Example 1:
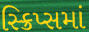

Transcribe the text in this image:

સ્ક્રિપ્સમાં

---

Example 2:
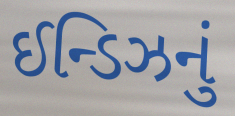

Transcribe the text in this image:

ઈન્ડિઝનું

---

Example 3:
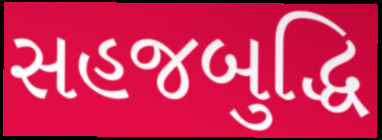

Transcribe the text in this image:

સહજબુદ્ધિ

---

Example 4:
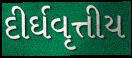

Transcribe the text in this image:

દીર્ઘવૃત્તીય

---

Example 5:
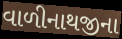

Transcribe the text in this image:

વાળીનાથજીના